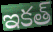
ఇకత్